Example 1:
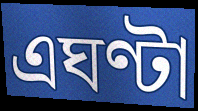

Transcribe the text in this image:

এঘণ্টা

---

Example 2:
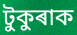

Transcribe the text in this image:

টুকুৰাক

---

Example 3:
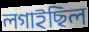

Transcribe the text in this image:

লগাইছিল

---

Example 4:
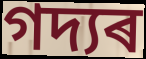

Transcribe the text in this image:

গদ্যৰ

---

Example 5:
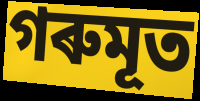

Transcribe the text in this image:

গৰুমূত